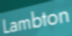
Lambton